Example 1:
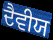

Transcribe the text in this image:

ਦੈਵੀਯ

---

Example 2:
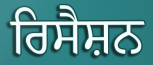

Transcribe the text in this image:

ਰਿਸੈਸ਼ਨ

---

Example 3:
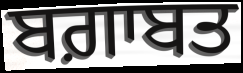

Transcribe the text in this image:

ਬਗ਼ਾਬਤ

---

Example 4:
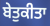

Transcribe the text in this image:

ਬੇਤੁਕੀਤਾ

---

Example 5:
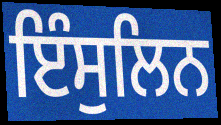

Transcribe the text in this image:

ਇੰਸੁਲਿਨ